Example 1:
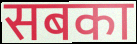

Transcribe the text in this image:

सबका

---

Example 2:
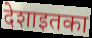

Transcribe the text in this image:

देशाइतका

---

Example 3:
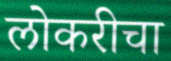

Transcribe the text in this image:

लोकरीचा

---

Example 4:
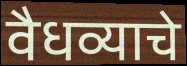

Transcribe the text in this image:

वैधव्याचे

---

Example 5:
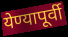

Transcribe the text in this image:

येण्यापूर्वी